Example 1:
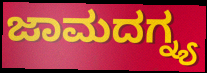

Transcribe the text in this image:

ಜಾಮದಗ್ನ್ಯ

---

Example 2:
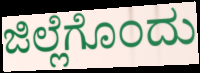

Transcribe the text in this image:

ಜಿಲ್ಲೆಗೊಂದು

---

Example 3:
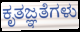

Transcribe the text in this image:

ಕೃತಜ್ಞತೆಗಳು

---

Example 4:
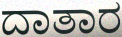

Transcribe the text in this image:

ದಾತಾರ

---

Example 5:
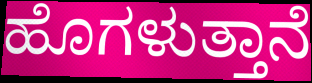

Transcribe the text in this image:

ಹೊಗಳುತ್ತಾನೆ